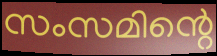
സംസമിന്റെ